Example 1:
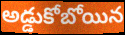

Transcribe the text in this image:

అడ్డుకోబోయిన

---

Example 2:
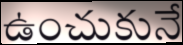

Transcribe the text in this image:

ఉంచుకునే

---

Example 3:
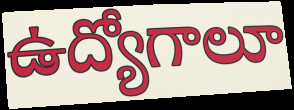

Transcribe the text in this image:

ఉద్యోగాలూ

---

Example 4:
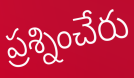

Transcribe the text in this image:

ప్రశ్నించేరు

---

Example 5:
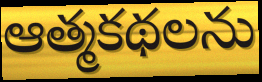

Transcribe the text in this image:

ఆత్మకథలను